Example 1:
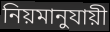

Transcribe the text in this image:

নিয়মানুযায়ী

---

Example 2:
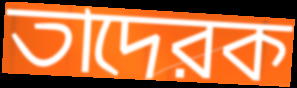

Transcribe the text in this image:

তাদেরক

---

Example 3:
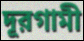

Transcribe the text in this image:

দূরগামী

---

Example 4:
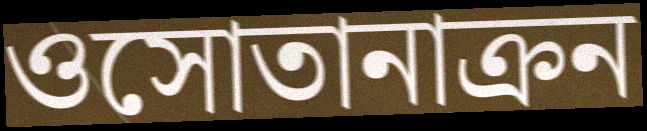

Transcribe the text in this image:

ওসোতানাক্রন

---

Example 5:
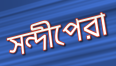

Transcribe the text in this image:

সন্দীপেরা